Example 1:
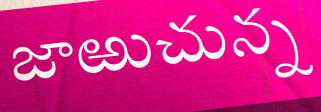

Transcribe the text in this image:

జాఱుచున్న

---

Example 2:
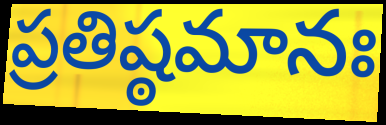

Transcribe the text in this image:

ప్రతిష్ఠమానః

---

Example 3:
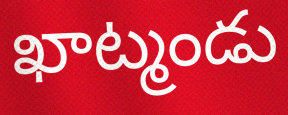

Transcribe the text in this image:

ఖాట్మండు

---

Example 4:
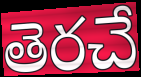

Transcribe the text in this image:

తెరచే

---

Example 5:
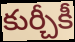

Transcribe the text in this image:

కుర్చీకీ